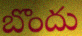
బొందు